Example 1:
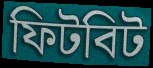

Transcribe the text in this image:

ফিটবিট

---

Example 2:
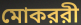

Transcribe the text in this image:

মোকররী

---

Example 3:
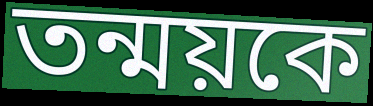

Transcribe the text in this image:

তন্ময়কে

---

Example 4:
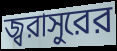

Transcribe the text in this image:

জ্বরাসুরের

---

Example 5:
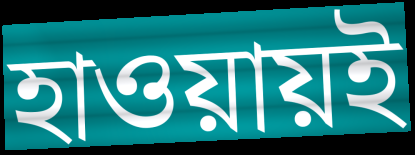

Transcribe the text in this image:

হাওয়ায়ই